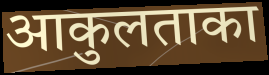
आकुलताका